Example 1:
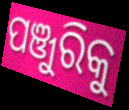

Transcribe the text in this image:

ପଞ୍ଜୁରିକୁ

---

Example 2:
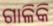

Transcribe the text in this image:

ଗାଳିକି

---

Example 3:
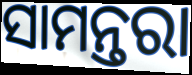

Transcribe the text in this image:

ସାମନ୍ତରା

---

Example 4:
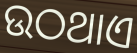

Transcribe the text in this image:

ଉଠଥାଏ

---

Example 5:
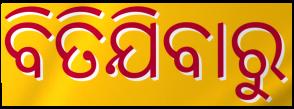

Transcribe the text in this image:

ବିତିଯିବାରୁ